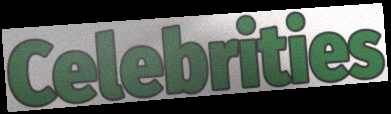
Celebrities